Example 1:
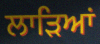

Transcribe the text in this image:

ਲਾੜਿਆਂ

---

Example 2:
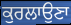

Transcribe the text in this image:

ਕੁਰਲਾਉਣਾ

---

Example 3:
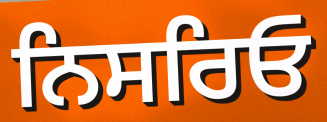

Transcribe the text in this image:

ਨਿਸਰਿਓ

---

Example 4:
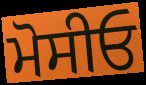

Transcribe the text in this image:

ਮੋਸੀਓ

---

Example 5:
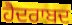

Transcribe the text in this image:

ਹੈਦਰਾਬਦ